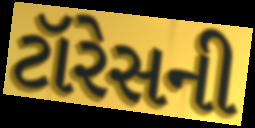
ટૉરેસની